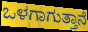
ಒಳಗಾಗುತ್ತಾನೆ